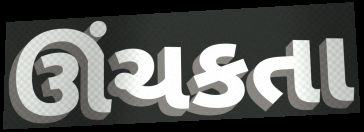
ઊંચકતા